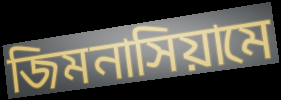
জিমনাসিয়ামে